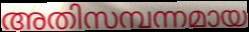
അതിസമ്പന്നമായ